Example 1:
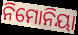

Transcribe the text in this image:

ନିମୋନିୟା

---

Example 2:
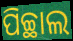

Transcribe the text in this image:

ପିଚ୍ଛାଲ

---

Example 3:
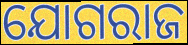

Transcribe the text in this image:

ଯୋଗରାଜ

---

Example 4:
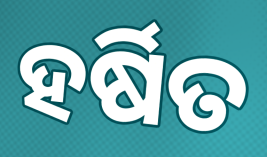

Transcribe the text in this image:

ହର୍ଷିତ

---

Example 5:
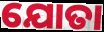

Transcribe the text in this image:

ଯୋତା